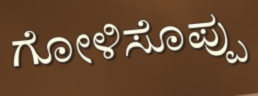
ಗೋಳಿಸೊಪ್ಪು